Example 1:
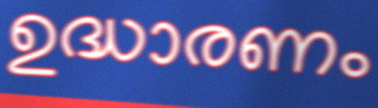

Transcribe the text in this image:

ഉദ്ധാരണം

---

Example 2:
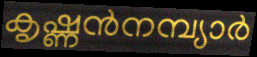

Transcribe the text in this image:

കൃഷ്ണൻനമ്പ്യാർ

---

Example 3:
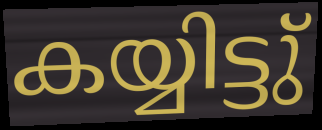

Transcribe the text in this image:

കയ്യിട്ടു്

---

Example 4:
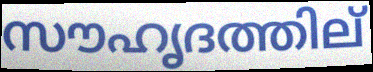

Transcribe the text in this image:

സൗഹൃദത്തില്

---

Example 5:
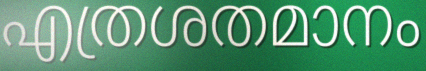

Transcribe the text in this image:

എത്രശതമാനം